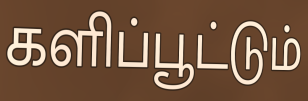
களிப்பூட்டும்